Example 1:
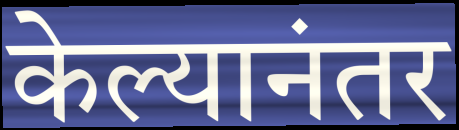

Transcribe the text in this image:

केल्यानंतर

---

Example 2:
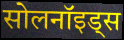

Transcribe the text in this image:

सोलनॉइड्स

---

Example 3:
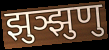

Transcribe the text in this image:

झुञ्झुणु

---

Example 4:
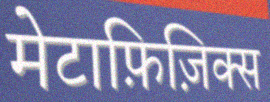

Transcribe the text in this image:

मेटाफ़िज़िक्स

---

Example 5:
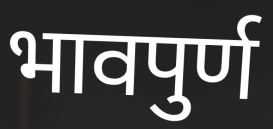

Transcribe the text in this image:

भावपुर्ण